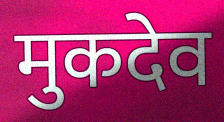
मुकदेव